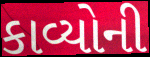
કાવ્યોની